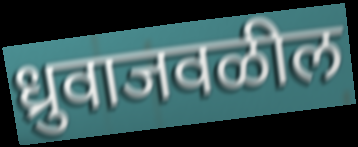
ध्रुवाजवळील